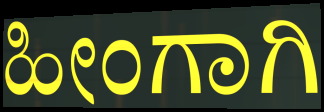
ಹೀಂಗಾಗಿ